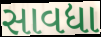
સાવદ્યા